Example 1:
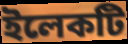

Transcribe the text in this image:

ইলেকটি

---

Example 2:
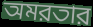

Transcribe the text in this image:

অমরতার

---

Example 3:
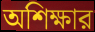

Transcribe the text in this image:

অশিক্ষার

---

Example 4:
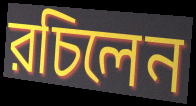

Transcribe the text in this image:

রচিলেন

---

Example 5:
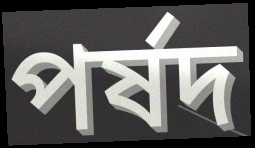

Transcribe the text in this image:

পর্ষদ